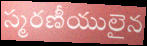
స్మరణీయులైన